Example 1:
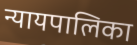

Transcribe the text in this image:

न्यायपालिका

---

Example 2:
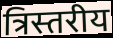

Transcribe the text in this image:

त्रिस्तरीय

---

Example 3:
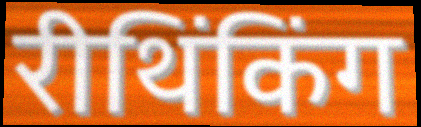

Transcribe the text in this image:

रीथिंकिंग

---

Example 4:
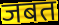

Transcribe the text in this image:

जबत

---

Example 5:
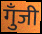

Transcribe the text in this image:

गुँजी